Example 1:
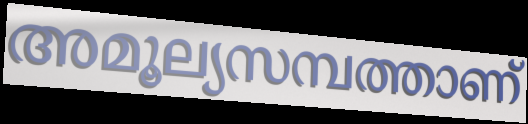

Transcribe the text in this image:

അമൂല്യസമ്പത്താണ്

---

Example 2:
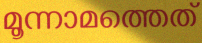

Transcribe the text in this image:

മൂന്നാമത്തെത്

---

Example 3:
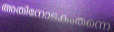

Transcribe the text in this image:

അതിനോടകംതന്നെ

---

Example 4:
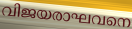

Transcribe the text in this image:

വിജയരാഘവനെ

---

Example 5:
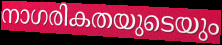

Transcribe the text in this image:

നാഗരികതയുടെയും